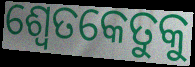
ଶ୍ୱେତକେତୁକୁ